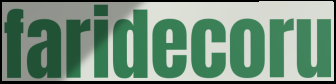
faridecoru